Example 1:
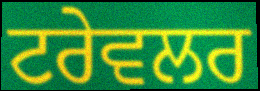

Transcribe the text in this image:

ਟਰੇਵਲਰ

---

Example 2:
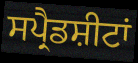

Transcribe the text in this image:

ਸਪ੍ਰੈਡਸ਼ੀਟਾਂ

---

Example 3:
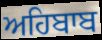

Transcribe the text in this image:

ਅਹਿਬਾਬ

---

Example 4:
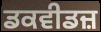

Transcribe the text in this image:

ਡਕਵੀਡਜ਼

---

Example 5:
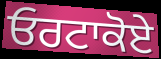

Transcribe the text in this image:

ਓਰਟਾਕੋਏ